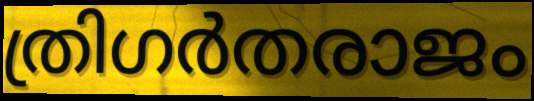
ത്രിഗർതരാജം